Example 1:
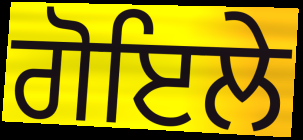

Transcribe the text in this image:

ਗੋਇਲੇ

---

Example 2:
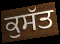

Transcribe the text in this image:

ਕੁਸੱਤ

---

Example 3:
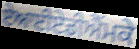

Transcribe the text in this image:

ਏਆਈਏਡੀਐੱਮਕੇ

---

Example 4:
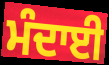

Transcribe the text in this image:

ਮੰਦਾਈ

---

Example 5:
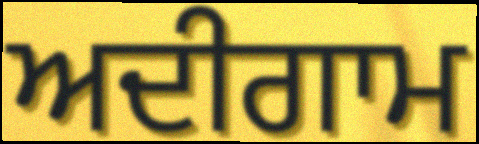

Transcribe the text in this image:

ਅਦੀਗਾਮ